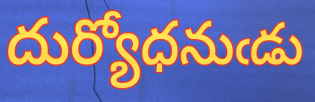
దుర్యోధనుఁడు